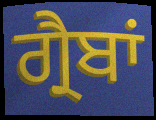
ਗ੍ਰੈਬਾਂ